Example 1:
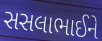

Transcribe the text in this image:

સસલાભાઈને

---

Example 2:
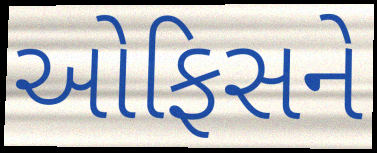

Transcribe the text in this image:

ઓફિસને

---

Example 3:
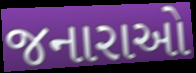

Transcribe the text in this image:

જનારાઓ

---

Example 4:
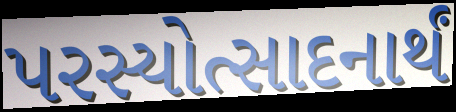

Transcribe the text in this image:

પરસ્યોત્સાદનાર્થં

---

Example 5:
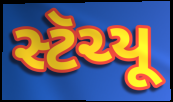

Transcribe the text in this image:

સ્ટૅચ્યૂ